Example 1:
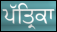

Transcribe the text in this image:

ਪੱਤ੍ਰਿਕਾ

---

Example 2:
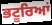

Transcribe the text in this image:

ਭਟੂਰਿਆਂ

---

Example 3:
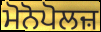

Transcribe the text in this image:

ਮੋਨੋਪੋਲਜ਼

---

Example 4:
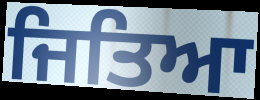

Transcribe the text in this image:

ਜਿਤਿਆ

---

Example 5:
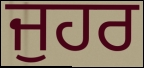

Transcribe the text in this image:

ਜੁਹਰ